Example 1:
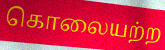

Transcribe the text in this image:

கொலையற்ற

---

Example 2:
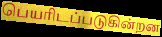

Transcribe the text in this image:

பெயரிடப்படுகின்றன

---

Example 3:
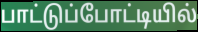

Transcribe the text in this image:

பாட்டுப்போட்டியில்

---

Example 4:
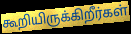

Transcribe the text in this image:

கூறியிருக்கிறீர்கள்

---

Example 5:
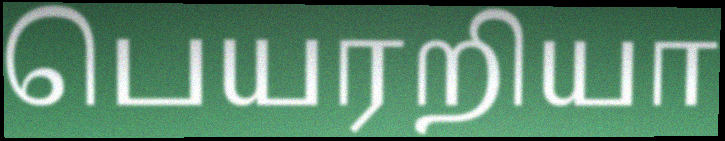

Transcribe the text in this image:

பெயரறியா